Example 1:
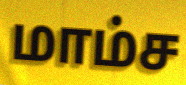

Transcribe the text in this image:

மாம்ச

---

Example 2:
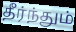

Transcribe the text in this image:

தீர்ந்தும்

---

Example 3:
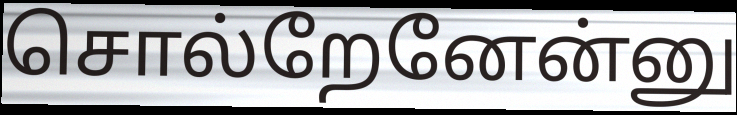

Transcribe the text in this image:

சொல்றேனேன்னு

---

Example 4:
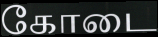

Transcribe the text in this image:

கோடை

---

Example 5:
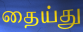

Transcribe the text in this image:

தைய்து